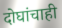
दोघांचाही